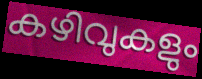
കഴിവുകളും